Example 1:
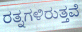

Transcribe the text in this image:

ರತ್ನಗಳಿರುತ್ತವೆ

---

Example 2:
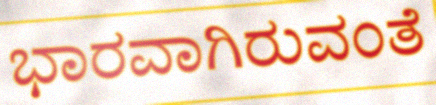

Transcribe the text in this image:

ಭಾರವಾಗಿರುವಂತೆ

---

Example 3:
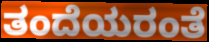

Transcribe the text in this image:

ತಂದೆಯರಂತೆ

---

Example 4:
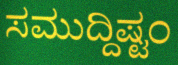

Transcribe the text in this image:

ಸಮುದ್ದಿಷ್ಟಂ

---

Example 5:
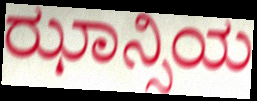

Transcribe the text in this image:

ಝಾನ್ಸಿಯ